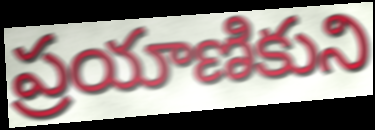
ప్రయాణికుని